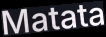
Matata